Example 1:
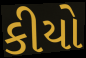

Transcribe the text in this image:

કીયો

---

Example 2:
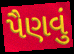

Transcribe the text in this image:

પૈણવું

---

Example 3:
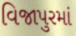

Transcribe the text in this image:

વિજાપુરમાં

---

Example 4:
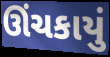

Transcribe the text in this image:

ઊંચકાયું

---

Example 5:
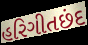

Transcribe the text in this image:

હરિગીતછંદ